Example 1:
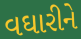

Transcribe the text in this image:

વઘારીને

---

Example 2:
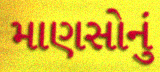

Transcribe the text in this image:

માણસોનું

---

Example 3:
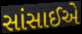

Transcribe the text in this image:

સાંસાઈએ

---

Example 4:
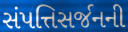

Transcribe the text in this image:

સંપત્તિસર્જનની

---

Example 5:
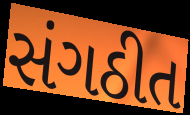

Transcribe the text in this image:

સંગઠીત